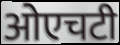
ओएचटी